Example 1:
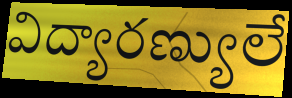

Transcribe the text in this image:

విద్యారణ్యులే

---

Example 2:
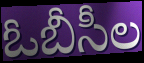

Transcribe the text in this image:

ఓబీసీల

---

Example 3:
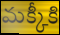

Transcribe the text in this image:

మక్కీకి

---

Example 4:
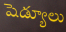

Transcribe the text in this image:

షెడ్యూలు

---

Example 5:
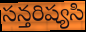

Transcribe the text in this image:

సన్తరిష్యసి